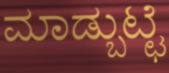
ಮಾಡ್ಬುಟ್ಟೆ